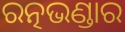
ରତ୍ନଭଣ୍ଡାର